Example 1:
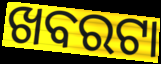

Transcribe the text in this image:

ଖବରଟା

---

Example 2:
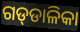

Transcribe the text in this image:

ଗଡ୍‍ଡାଳିକା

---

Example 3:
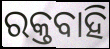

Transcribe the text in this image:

ରକ୍ତବାହି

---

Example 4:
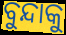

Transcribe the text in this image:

ବୁନ୍ଦାକୁ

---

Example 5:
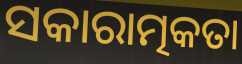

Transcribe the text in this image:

ସକାରାତ୍ମକତା